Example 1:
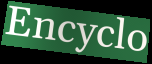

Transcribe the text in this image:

Encyclo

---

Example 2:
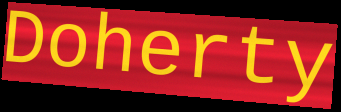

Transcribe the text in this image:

Doherty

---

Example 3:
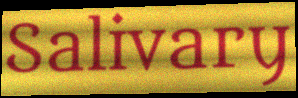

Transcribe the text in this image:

Salivary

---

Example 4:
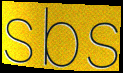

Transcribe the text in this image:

sbs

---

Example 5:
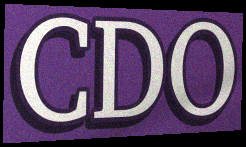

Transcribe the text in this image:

CDO